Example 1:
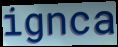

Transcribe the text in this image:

ignca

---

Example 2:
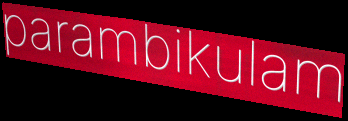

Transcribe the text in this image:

parambikulam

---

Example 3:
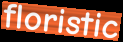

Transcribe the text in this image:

floristic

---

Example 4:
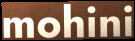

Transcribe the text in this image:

mohini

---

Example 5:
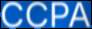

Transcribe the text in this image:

CCPA